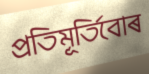
প্ৰতিমূৰ্তিবোৰ